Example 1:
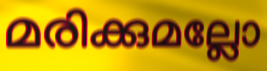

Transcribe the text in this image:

മരിക്കുമല്ലോ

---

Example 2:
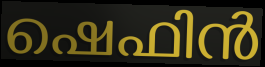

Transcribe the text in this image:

ഷെഫിൻ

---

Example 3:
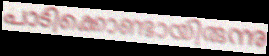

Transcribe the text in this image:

പാടിക്കൊണ്ടായിരുന്നു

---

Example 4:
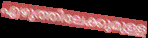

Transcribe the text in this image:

എഴുത്തിലേക്കുമുള്ള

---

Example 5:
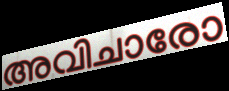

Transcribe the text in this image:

അവിചാരോ